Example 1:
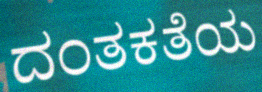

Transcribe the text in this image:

ದಂತಕತೆಯ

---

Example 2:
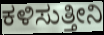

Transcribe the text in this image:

ಕಳಿಸುತ್ತೀನಿ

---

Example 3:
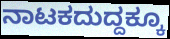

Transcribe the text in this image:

ನಾಟಕದುದ್ದಕ್ಕೂ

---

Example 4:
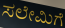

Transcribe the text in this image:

ಸಲೇಮಿಗೆ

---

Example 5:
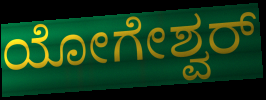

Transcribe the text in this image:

ಯೋಗೇಶ್ವರ್